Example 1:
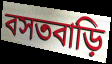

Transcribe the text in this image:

বসতবাড়ি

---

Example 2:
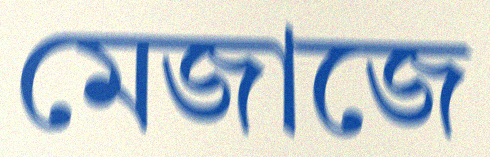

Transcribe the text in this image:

মেজাজে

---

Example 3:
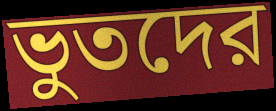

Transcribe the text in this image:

ভুতদের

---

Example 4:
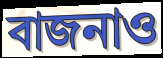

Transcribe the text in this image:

বাজনাও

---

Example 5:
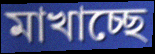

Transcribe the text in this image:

মাখাচ্ছে